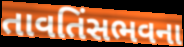
તાવતિંસભવના